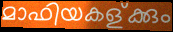
മാഫിയകള്ക്കും